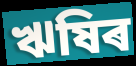
ঋষিৰ